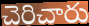
చెరిచారు